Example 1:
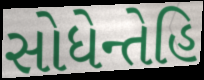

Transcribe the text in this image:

સોધેન્તેહિ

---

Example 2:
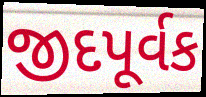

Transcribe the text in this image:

જીદપૂર્વક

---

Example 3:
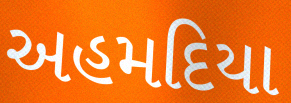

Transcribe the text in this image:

અહમદિયા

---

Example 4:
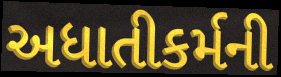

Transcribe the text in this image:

અધાતીકર્મની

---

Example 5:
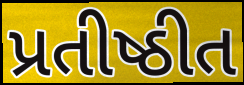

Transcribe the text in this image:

પ્રતીષ્ઠીત